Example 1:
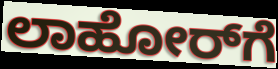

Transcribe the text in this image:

ಲಾಹೋರ್‌ಗೆ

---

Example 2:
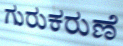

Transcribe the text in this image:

ಗುರುಕರುಣೆ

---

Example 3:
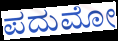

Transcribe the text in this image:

ಪದುಮೋ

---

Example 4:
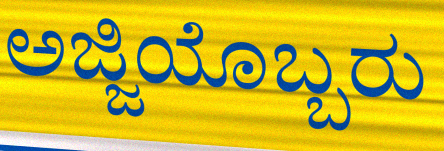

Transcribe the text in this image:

ಅಜ್ಜಿಯೊಬ್ಬರು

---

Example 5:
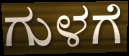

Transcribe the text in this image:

ಗುಳಗೆ